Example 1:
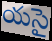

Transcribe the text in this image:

యసై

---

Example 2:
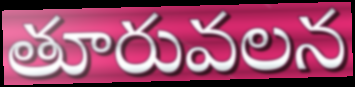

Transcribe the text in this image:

తూరువలన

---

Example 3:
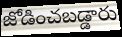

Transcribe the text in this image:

జోడించబడ్డారు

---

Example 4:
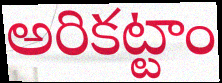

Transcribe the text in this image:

అరికట్టాం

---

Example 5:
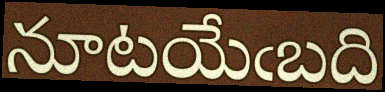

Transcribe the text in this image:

నూటయేఁబది